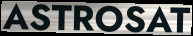
ASTROSAT